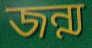
জন্ম